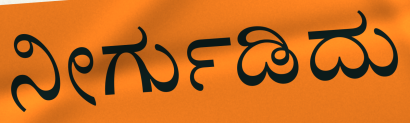
ನೀರ್ಗುಡಿದು